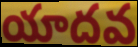
యాదవ